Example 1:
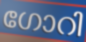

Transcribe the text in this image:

ഗോറി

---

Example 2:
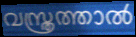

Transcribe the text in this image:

വസ്ത്രത്താൽ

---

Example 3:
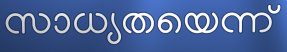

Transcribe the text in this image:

സാധ്യതയെന്ന്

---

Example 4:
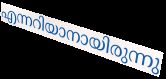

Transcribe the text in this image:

എന്നറിയാനായിരുന്നു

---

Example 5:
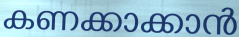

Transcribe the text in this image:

കണക്കാക്കാൻ